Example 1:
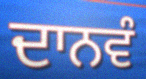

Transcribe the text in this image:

ਦਾਨਵੰ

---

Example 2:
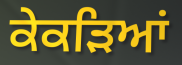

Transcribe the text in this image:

ਕੇਕੜਿਆਂ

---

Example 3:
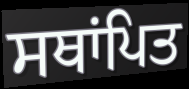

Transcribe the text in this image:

ਸਥਾਂਪਿਤ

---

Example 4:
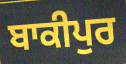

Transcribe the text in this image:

ਬਾਕੀਪੁਰ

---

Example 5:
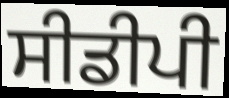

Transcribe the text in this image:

ਸੀਡੀਪੀ